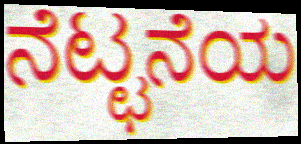
ನೆಟ್ಟನೆಯ